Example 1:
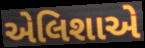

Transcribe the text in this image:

એલિશાએ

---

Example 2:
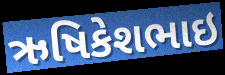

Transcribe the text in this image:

ઋષિકેશભાઇ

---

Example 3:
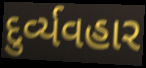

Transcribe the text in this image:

દુર્વ્યવહાર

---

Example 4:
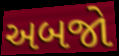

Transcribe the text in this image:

અબજો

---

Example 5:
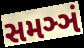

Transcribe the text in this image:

સમઞ્ઞં